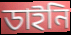
ডাইনি